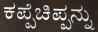
ಕಪ್ಪೆಚಿಪ್ಪನ್ನು